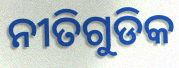
ନୀତିଗୁଡିକ